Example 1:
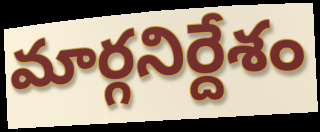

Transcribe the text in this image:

మార్గనిర్దేశం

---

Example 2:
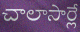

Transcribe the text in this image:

చాలాసార్లే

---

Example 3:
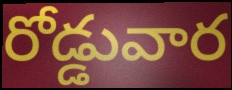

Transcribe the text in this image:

రోడ్డువార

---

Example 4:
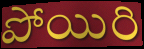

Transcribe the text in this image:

పోయిరి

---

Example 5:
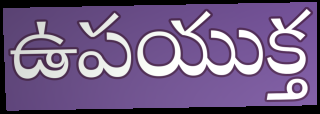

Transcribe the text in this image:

ఉపయుక్త